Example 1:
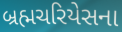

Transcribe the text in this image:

બ્રહ્મચરિયેસના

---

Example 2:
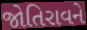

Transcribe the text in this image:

જોતિરાવને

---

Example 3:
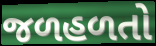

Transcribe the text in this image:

જળહળતો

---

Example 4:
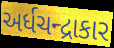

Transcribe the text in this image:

અર્ધચન્દ્રાકાર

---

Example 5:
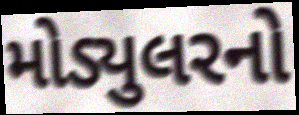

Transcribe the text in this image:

મોડ્યુલરનો